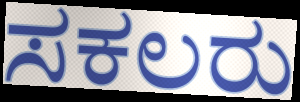
ಸಕಲರು